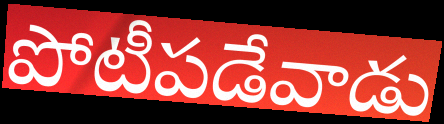
పోటీపడేవాడు